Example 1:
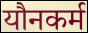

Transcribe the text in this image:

यौनकर्म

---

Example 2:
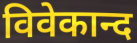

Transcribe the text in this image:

विवेकान्द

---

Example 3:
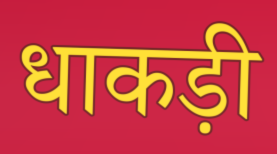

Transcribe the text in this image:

धाकड़ी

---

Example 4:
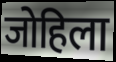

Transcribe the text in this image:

जोहिला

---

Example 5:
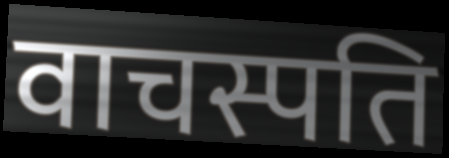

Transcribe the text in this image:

वाचस्पति